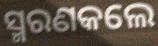
ସ୍ମରଣକଲେ